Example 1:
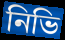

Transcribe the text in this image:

নিভি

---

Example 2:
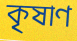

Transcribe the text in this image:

কৃষাণ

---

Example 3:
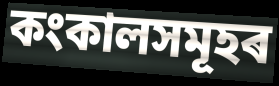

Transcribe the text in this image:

কংকালসমূহৰ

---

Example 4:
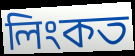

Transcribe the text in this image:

লিংকত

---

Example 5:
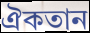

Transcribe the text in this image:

ঐকতান